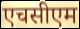
एचसीएम